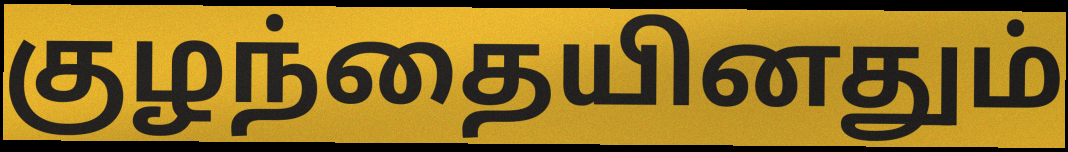
குழந்தையினதும்